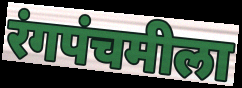
रंगपंचमीला